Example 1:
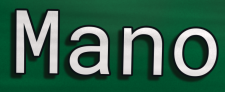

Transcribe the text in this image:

Mano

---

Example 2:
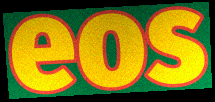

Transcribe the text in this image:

eos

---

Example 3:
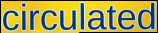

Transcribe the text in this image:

circulated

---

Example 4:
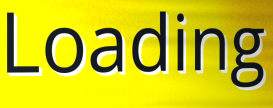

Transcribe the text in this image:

Loading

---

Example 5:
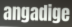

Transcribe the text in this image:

angadige